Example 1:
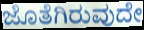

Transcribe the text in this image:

ಜೊತೆಗಿರುವುದೇ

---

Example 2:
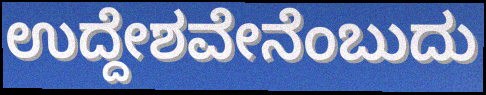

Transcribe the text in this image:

ಉದ್ದೇಶವೇನೆಂಬುದು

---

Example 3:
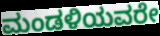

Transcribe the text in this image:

ಮಂಡಳಿಯವರೇ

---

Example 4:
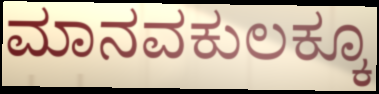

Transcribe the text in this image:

ಮಾನವಕುಲಕ್ಕೂ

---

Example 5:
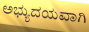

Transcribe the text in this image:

ಅಭ್ಯುದಯವಾಗಿ